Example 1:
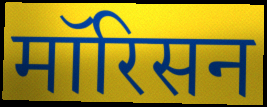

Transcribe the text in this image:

मॉरिसन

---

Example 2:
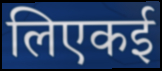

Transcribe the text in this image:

लिएकई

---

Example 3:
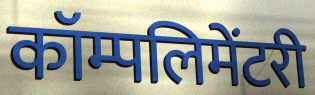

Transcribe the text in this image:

कॉम्पलिमेंटरी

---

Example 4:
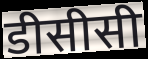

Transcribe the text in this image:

डीसीसी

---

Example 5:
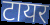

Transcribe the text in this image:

टायर